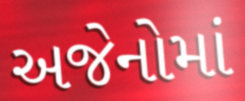
અજેનોમાં